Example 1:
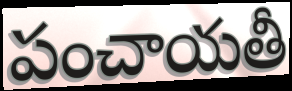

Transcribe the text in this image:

పంచాయతీ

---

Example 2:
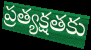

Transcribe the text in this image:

ప్రత్యక్షతకు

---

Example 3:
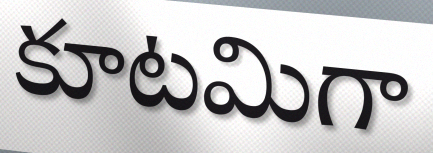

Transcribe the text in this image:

కూటమిగా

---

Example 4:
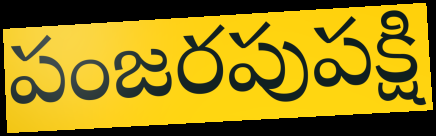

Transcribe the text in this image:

పంజరపుపక్షి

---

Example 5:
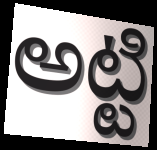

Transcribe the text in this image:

అట్టి